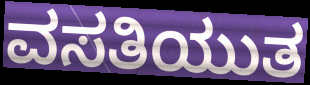
ವಸತಿಯುತ